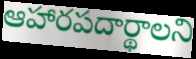
ఆహారపదార్థాలని